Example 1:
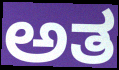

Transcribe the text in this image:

ಅತ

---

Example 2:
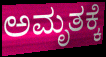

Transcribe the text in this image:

ಅಮೃತಕ್ಕೆ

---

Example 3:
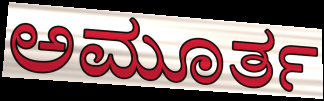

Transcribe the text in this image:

ಅಮೂರ್ತ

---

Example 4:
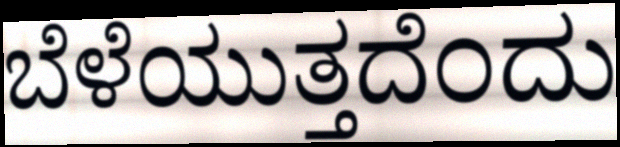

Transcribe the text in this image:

ಬೆಳೆಯುತ್ತದೆಂದು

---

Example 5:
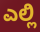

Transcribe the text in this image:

ಎಲ್ಲಿ